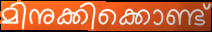
മിനുക്കിക്കൊണ്ട്